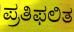
ಪ್ರತಿಫಲಿತ